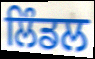
ਲਿੰਡਲ